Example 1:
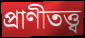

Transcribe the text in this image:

প্রাণীতত্ত্ব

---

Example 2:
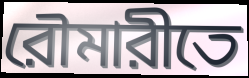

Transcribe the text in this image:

রৌমারীতে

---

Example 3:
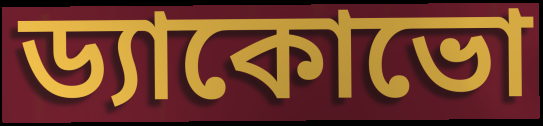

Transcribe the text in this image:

ড্যাকোভো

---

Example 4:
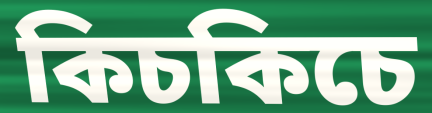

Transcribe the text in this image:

কিচকিচে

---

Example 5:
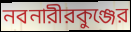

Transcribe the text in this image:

নবনারীরকুঞ্জের